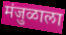
मंजुळाला